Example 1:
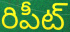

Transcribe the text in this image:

రిపీట్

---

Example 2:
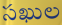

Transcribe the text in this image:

సఖుల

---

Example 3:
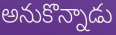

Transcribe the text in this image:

అనుకొన్నాడు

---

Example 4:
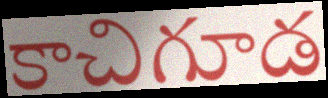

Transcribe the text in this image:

కాచిగూడ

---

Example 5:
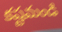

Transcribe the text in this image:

కష్టమండి